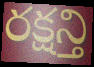
రక్షన్తి